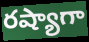
రష్యాగా